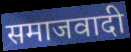
समाजवादी